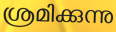
ശ്രമിക്കുന്നു